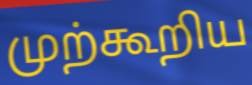
முற்கூறிய